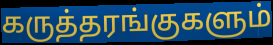
கருத்தரங்குகளும்